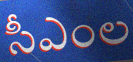
సీఎంల